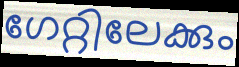
ഗേറ്റിലേക്കും